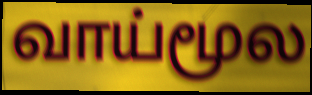
வாய்மூல